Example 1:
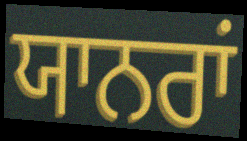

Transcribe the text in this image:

ਯਾਨਰਾਂ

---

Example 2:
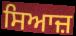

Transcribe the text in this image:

ਸਿਆਜ਼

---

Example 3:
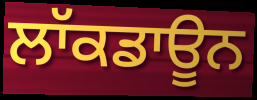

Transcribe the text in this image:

ਲਾੱਕਡਾਊਨ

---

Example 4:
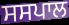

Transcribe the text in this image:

ਸਸਪਾਲ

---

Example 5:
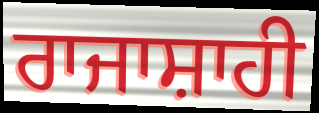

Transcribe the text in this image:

ਰਾਜਾਸ਼ਾਹੀ